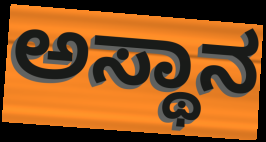
ಅಸ್ಥಾನ